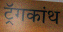
ट्रॅगकांथ